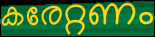
കരേറ്റണം